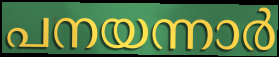
പനയന്നാർ